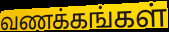
வணக்கங்கள்